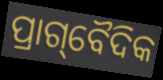
ପ୍ରାଗ୍‌ବୈଦିକ